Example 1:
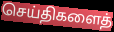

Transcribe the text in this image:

செய்திகளைத்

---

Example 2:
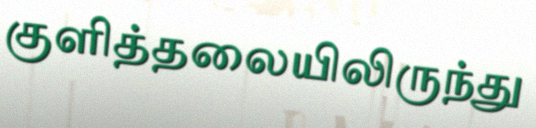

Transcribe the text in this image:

குளித்தலையிலிருந்து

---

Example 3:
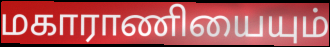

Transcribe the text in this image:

மகாராணியையும்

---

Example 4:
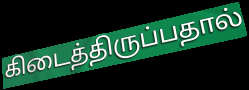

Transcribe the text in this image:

கிடைத்திருப்பதால்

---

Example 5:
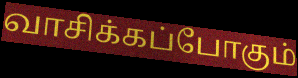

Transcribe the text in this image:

வாசிக்கப்போகும்